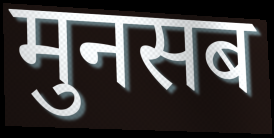
मुनसब